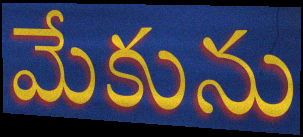
మేకును